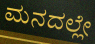
ಮನದಲ್ಲೇ